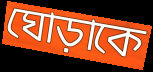
ঘোড়াকে